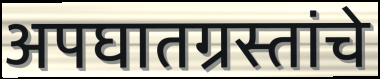
अपघातग्रस्तांचे